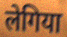
लेगिया